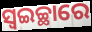
ସ୍ୱଇଚ୍ଛାରେ